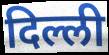
दिल्ली